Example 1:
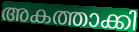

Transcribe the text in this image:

അകത്താക്കി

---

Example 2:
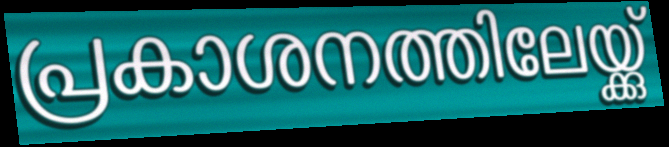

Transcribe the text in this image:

പ്രകാശനത്തിലേയ്ക്കു്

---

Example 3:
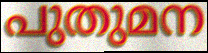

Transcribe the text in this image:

പുതുമന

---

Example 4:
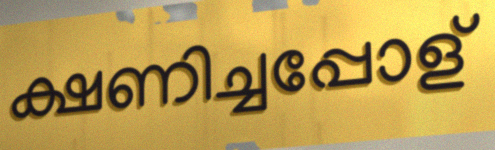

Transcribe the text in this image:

ക്ഷണിച്ചപ്പോള്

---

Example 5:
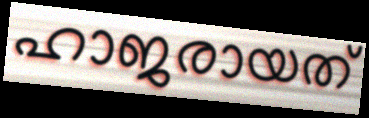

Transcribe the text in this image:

ഹാജരായത്